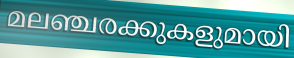
മലഞ്ചരക്കുകളുമായി